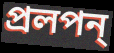
প্রলপন্